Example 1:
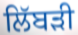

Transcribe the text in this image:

ਲਿੱਬੜੀ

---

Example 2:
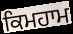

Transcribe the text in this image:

ਕਿਮਹਾਮ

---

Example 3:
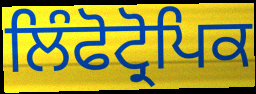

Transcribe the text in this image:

ਲਿੰਫੋਟ੍ਰੋਪਿਕ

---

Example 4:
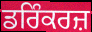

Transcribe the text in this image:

ਡਰਿੰਕਰਜ਼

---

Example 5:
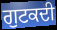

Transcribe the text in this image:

ਗੁਟਕਦੀ